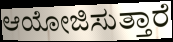
ಆಯೋಜಿಸುತ್ತಾರೆ